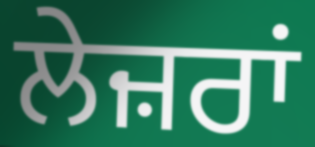
ਲੇਜ਼ਰਾਂ